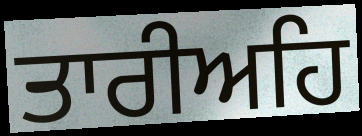
ਤਾਰੀਅਹਿ